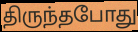
திருந்தபோது